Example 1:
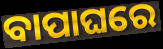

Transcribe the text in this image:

ବାପାଘରେ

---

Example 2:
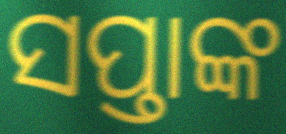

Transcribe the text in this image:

ସପ୍ତାଙ୍କ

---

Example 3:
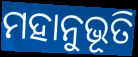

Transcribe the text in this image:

ମହାନୁଭୂତି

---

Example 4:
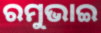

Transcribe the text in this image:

ରମୁଭାଇ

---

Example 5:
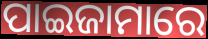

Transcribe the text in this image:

ପାଇଜାମାରେ